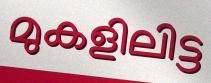
മുകളിലിട്ട